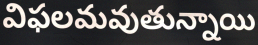
విఫలమవుతున్నాయి